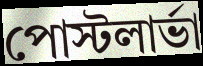
পোস্টলার্ভা